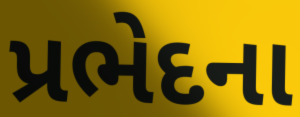
પ્રભેદના